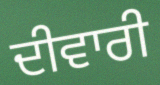
ਦੀਵਾਰੀ